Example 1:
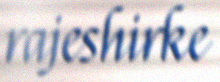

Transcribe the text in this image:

rajeshirke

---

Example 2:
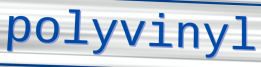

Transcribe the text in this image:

polyvinyl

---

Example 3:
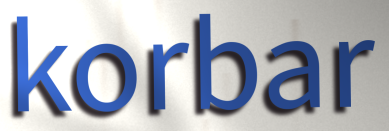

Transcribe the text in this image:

korbar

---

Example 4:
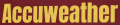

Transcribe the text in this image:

Accuweather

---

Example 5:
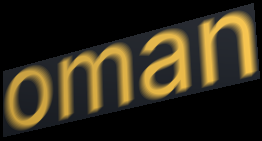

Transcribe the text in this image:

oman